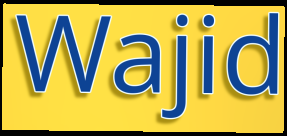
Wajid